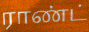
ராண்ட்